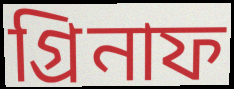
গ্রিনাফ